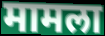
मामला